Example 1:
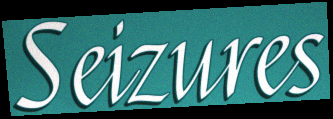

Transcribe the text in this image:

Seizures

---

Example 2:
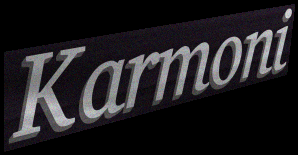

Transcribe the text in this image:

Karmoni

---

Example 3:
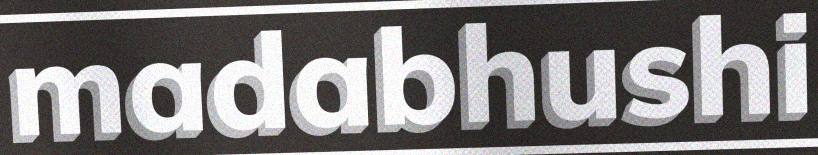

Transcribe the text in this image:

madabhushi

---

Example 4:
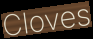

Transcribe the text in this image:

Cloves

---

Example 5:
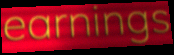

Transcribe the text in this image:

earnings